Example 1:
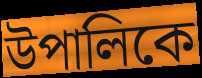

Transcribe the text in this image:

উপালিকে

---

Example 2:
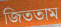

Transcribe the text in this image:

জিততাম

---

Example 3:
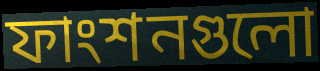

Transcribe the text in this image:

ফাংশনগুলো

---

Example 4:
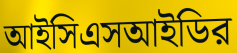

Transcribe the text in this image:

আইসিএসআইডির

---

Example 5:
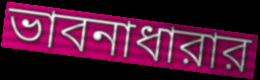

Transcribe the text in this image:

ভাবনাধারার